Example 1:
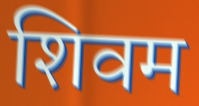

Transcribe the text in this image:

शिवम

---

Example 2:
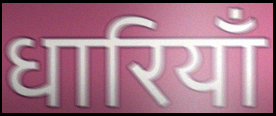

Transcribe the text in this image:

धारियाँ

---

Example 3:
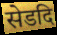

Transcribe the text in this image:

सेडदि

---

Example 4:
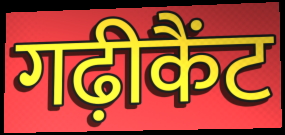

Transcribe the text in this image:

गढ़ीकैंट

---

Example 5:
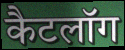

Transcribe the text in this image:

कैटलॉग